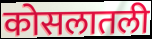
कोसलातली